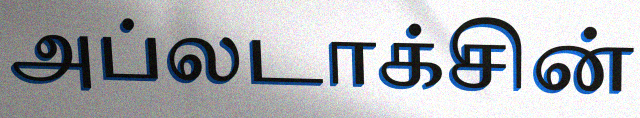
அப்லடாக்சின்